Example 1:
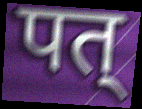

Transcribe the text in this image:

पत्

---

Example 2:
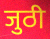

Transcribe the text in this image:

जुठी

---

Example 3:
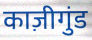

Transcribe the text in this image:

काज़ीगुंड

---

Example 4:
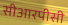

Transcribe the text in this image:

सीआरपीसी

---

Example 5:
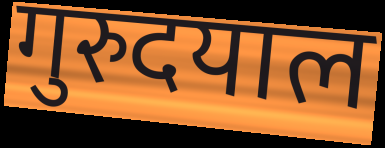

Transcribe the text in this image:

गुरुदयाल